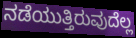
ನಡೆಯುತ್ತಿರುವುದೆಲ್ಲ